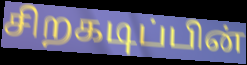
சிறகடிப்பின்